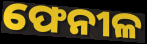
ଫେନୀଳ